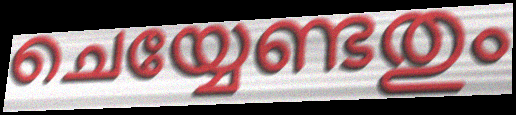
ചെയ്യേണ്ടതും